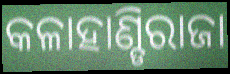
କଳାହାଣ୍ଡିରାଜା